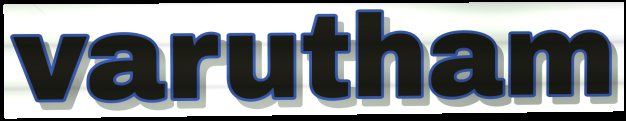
varutham